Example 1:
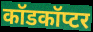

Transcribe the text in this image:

कॉडकॉप्टर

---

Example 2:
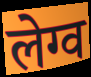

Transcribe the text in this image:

लेग्व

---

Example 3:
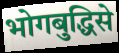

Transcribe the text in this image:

भोगबुद्धिसे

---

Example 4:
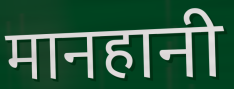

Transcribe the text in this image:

मानहानी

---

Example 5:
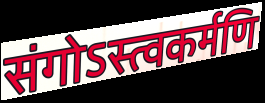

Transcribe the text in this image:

संगोऽस्त्वकर्मणि